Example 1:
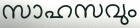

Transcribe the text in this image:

സാഹസവും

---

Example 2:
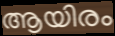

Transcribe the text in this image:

ആയിരം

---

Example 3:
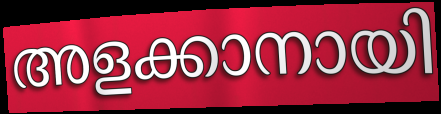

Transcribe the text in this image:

അളക്കാനായി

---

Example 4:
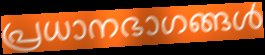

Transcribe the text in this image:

പ്രധാനഭാഗങ്ങൾ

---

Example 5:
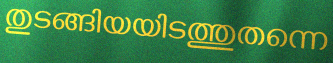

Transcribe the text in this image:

തുടങ്ങിയയിടത്തുതന്നെ